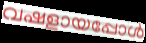
വഷളായപ്പോൾ